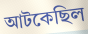
আটকেছিল